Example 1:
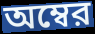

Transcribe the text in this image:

অম্বের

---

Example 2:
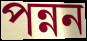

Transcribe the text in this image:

পন্নন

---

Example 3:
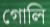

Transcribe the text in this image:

গোলি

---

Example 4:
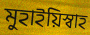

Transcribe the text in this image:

মুহাইয়িস্বাহ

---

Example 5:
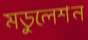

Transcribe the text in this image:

মডুলেশন